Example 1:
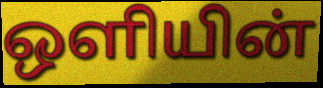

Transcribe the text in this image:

ஒளியின்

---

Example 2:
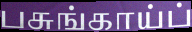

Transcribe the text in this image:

பசுங்காய்ப்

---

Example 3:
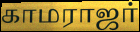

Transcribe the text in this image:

காமராஜர்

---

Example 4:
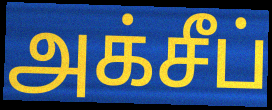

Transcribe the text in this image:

அக்சீப்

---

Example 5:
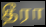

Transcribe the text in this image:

தீரா